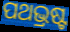
ପଥଭ୍ରଷ୍ଟ